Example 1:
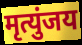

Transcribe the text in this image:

मृत्युंजय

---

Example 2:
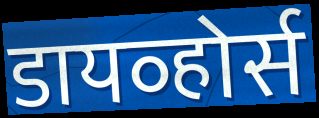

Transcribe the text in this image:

डायव्होर्स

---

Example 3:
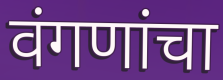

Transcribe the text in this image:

वंगणांचा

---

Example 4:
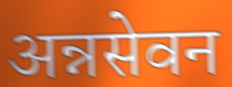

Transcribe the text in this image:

अन्नसेवन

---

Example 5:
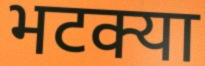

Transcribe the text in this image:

भटक्या